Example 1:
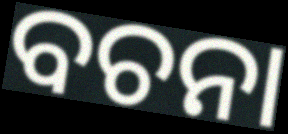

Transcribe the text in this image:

ବଚନା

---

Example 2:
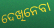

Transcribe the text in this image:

ଦେଖିନେବା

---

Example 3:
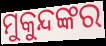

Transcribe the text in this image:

ମୁକୁନ୍ଦଙ୍କର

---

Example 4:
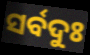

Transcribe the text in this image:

ସର୍ବଦୁଃ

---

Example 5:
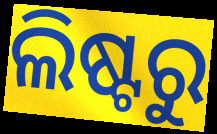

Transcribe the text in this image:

ଲିଷ୍ଟରୁ